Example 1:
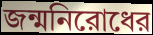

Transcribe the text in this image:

জন্মনিরোধের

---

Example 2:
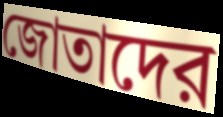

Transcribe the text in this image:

জোতাদের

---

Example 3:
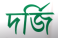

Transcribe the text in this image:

দর্জি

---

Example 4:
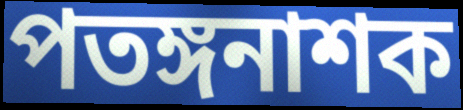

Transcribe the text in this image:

পতঙ্গনাশক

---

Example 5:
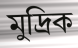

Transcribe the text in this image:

মুদ্রিক